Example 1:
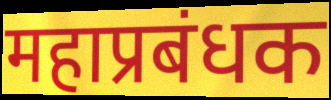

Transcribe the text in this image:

महाप्रबंधक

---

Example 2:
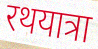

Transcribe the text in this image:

रथयात्रा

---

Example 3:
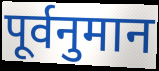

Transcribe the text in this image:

पूर्वनुमान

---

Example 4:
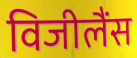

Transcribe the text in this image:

विजीलैंस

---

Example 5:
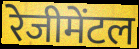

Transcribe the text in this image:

रेजीमेंटल